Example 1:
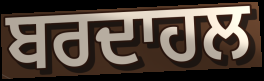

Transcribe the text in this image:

ਬਰਦਾਹਲ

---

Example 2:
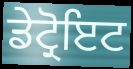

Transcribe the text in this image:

ਡੇਟ੍ਰੋਇਟ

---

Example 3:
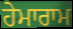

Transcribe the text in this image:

ਹੇਮਾਰਾਮ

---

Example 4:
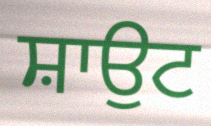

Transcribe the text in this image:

ਸ਼ਾਉਟ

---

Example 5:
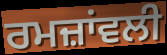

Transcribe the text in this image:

ਰਮਜ਼ਾਂਵਲੀ